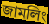
জামলিং